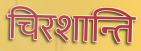
चिरशान्ति